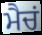
ਮੈਚਂ